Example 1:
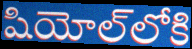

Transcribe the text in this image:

షియోల్‌లోకి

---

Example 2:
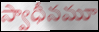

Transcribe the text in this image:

స్వాధీనమూ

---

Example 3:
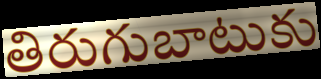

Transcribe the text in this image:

తిరుగుబాటుకు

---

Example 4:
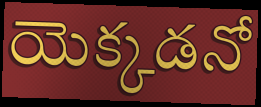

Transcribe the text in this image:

యెక్కడనో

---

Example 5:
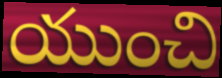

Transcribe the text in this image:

యుంచి